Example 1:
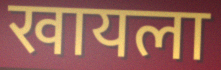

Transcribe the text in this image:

खायला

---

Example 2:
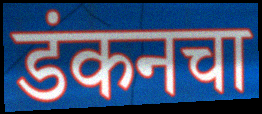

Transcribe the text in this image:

डंकनचा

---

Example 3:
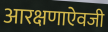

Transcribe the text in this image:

आरक्षणाऐवजी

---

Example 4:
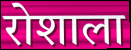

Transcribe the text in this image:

रोशाला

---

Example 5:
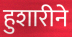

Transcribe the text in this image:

हुशारीने